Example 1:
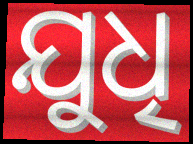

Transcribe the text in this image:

ଯୁଧି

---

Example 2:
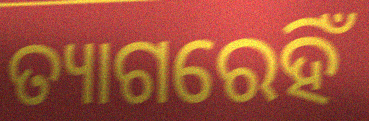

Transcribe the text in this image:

ତ୍ୟାଗରେହିଁ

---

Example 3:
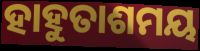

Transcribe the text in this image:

ହାହୁତାଶମୟ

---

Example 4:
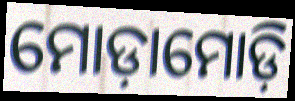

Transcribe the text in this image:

ମୋଡ଼ାମୋଡ଼ି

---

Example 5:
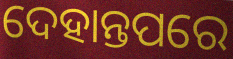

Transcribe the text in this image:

ଦେହାନ୍ତପରେ